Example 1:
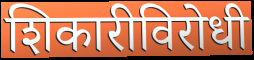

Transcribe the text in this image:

शिकारीविरोधी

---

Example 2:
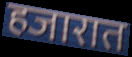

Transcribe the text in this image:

हजारात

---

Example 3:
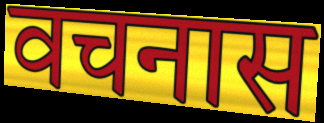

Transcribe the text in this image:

वचनास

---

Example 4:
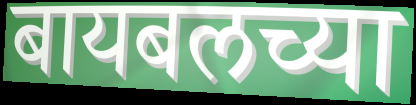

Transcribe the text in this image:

बायबलच्या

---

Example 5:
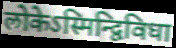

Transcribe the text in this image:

लोकेऽस्मिन्द्विविधा